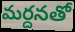
మర్దనతో